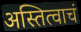
अस्तित्वाचं